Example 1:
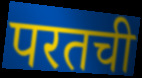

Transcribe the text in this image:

परतची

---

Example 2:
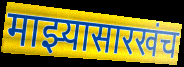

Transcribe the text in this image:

माझ्यासारखंच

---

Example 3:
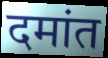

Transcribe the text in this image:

दमांत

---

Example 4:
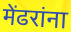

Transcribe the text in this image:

मेंढरांना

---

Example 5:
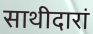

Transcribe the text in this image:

साथीदारां